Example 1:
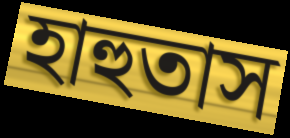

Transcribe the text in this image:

হাহুতাস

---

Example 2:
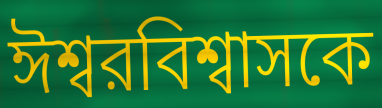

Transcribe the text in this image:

ঈশ্বরবিশ্বাসকে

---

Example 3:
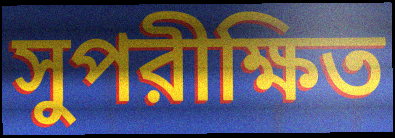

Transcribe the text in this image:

সুপরীক্ষিত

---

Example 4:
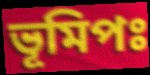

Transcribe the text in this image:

ভূমিপঃ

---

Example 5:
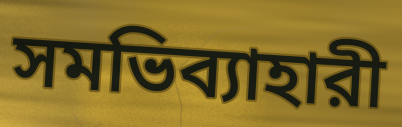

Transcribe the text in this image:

সমভিব্যাহারী